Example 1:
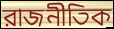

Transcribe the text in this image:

রাজনীতিক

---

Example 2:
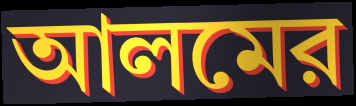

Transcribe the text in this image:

আলমের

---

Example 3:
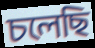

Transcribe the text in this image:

চলেছি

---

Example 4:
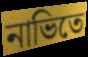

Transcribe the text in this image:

নাভিতে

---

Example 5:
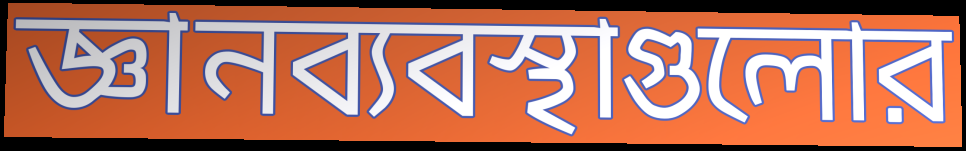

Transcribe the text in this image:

জ্ঞানব্যবস্থাগুলোর